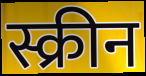
स्क्रीन